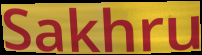
Sakhru